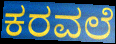
ಕರವಲೆ